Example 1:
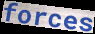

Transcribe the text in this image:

forces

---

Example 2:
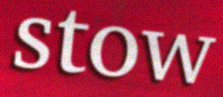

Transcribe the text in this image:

stow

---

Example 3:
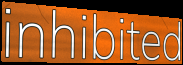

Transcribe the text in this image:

inhibited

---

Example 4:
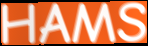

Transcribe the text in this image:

HAMS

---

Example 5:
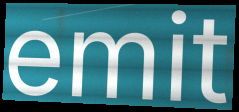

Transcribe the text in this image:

emit